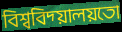
বিশ্ববিদ্য়ালয়তো